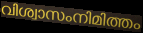
വിശ്വാസംനിമിത്തം